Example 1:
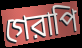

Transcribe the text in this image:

গেরাপি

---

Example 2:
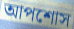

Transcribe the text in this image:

আপশোস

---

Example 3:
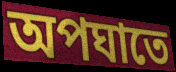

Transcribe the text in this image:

অপঘাতে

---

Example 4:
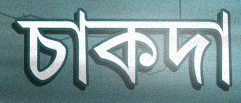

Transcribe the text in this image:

চাকদা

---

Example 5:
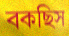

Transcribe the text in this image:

বকছিস